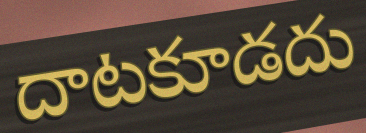
దాటకూడదు